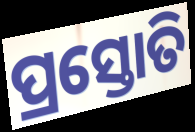
ପ୍ରସ୍ତୋତି